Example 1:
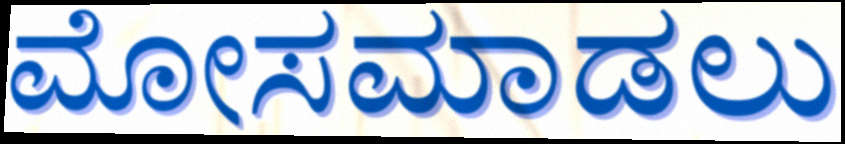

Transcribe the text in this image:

ಮೋಸಮಾಡಲು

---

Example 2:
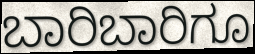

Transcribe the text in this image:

ಬಾರಿಬಾರಿಗೂ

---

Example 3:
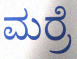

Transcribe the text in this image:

ಮರ್ರೆ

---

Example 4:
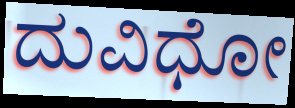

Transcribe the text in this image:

ದುವಿಧೋ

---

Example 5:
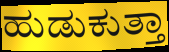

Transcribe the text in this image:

ಹುಡುಕುತ್ತಾ